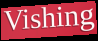
Vishing